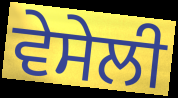
ਵੇਸੇਲੀ